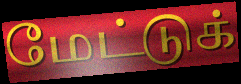
மேட்டுக்